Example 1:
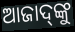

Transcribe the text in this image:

ଆଜାଦ୍‌ଙ୍କୁ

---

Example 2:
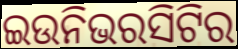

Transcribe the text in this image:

ଇଉନିଭରସିଟିର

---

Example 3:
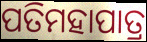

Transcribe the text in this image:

ପତିମହାପାତ୍ର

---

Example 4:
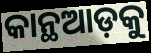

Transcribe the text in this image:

କାନ୍ଥଆଡ଼କୁ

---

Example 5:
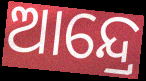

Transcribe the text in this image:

ଆନ୍ଦ୍ରେ